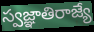
స్వజ్ఞాతిరాజ్యే